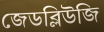
জেডব্লিউজি